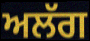
ਅਲੱਗ